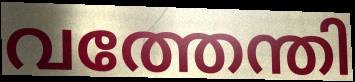
വത്തേന്തി